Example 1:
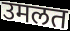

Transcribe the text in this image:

उमलत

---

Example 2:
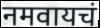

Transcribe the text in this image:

नमवायचं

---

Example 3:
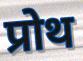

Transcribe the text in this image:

प्रोथ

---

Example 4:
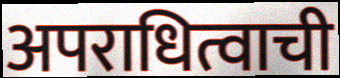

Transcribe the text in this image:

अपराधित्वाची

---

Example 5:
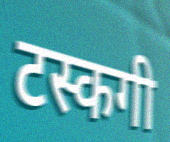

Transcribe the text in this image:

टस्कगी